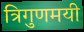
त्रिगुणमयी